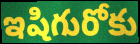
ఇషిగురోకు